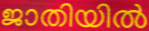
ജാതിയിൽ